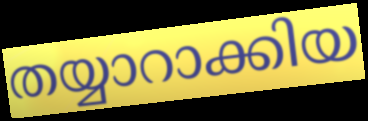
തയ്യാറാക്കിയ